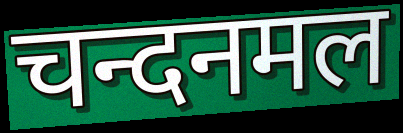
चन्दनमल